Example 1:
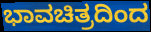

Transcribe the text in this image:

ಭಾವಚಿತ್ರದಿಂದ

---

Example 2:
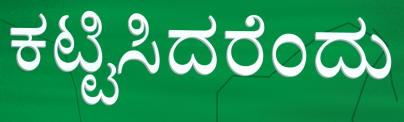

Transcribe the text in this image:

ಕಟ್ಟಿಸಿದರೆಂದು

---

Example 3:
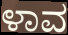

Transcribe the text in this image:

ಳಾವ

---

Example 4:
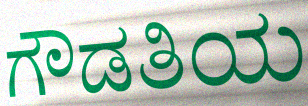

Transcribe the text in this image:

ಗೌಡತಿಯ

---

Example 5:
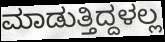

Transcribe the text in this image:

ಮಾಡುತ್ತಿದ್ದಳಲ್ಲ